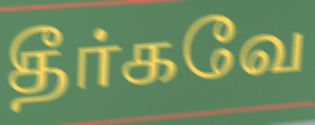
தீர்கவே